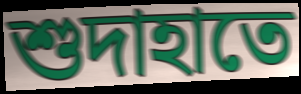
শুদাহাতে